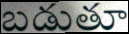
బడుతూ